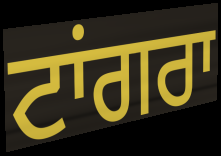
ਟਾਂਗਰਾ